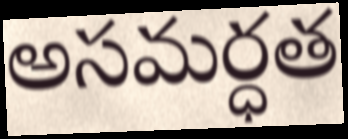
అసమర్ధత